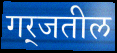
गर्जतील